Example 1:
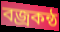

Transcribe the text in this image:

বজ্রকন্ঠ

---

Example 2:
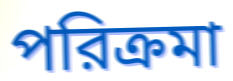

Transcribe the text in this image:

পরিক্রমা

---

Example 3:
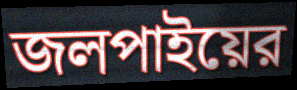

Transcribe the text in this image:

জলপাইয়ের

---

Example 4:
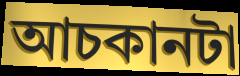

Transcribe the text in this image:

আচকানটা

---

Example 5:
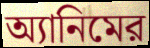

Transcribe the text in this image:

অ্যানিমের